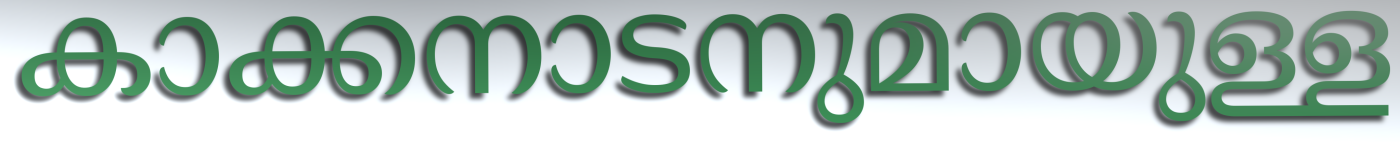
കാക്കനാടനുമായുള്ള